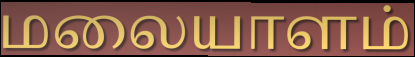
மலையாளம்